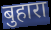
बुहारा